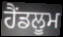
ਹੈਂਡਲੂਮ